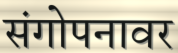
संगोपनावर